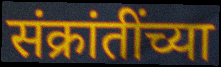
संक्रांतींच्या